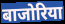
बाजोरिया